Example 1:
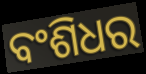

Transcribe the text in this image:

ବଂଶିଧର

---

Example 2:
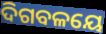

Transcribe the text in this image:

ଦିଗବଳୟେ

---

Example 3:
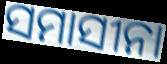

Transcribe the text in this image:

ସମାସୀନା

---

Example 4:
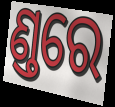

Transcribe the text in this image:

ଣ୍ଡରେ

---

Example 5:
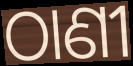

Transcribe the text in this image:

ଠାଣୀ